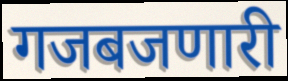
गजबजणारी